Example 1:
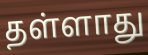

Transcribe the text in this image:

தள்ளாது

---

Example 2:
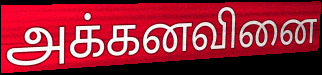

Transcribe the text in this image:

அக்கனவினை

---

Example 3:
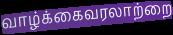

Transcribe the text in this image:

வாழ்க்கைவரலாற்றை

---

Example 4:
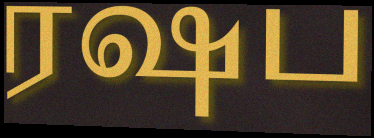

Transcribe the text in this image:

ரஷப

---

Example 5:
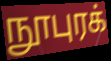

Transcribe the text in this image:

நூபுரக்